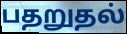
பதறுதல்